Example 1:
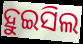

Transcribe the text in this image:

ହୁଇସିଲ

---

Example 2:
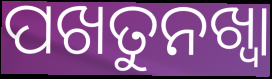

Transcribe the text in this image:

ପଖତୁନଖ୍ୱା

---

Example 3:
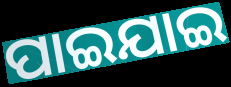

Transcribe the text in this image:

ପାଇଯାଇ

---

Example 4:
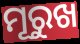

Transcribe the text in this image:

ମୂରୁଖ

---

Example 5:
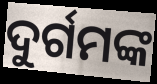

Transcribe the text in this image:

ଦୁର୍ଗମଙ୍କ